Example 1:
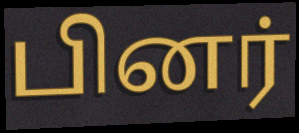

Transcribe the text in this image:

பினர்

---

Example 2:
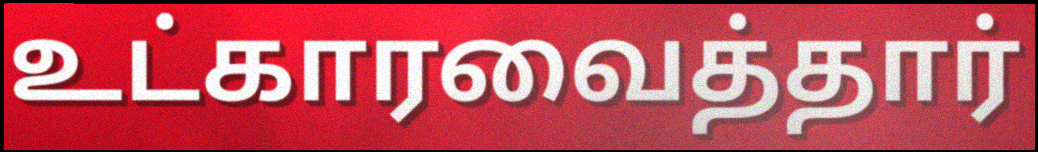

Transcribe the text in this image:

உட்காரவைத்தார்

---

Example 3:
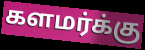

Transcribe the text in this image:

களமர்க்கு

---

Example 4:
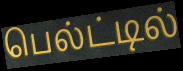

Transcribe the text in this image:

பெல்ட்டில்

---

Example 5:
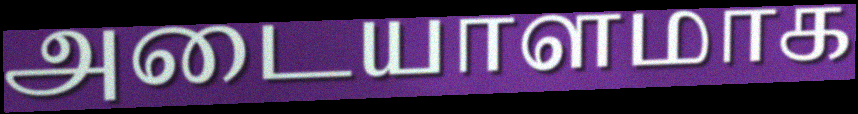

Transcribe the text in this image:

அடையாளமாக